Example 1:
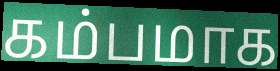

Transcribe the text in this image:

கம்பமாக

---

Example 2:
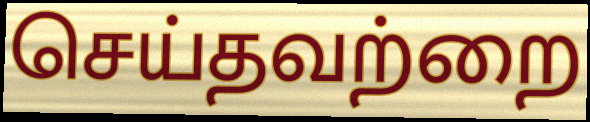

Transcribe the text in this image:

செய்தவற்றை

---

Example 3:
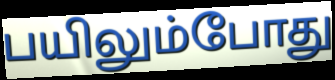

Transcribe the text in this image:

பயிலும்போது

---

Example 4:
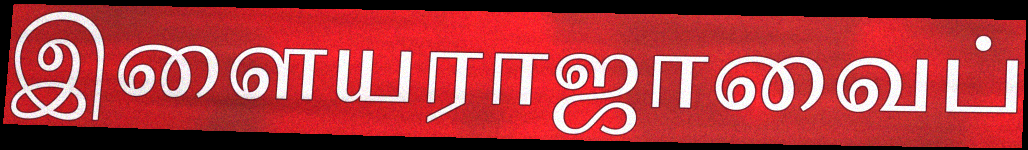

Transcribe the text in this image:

இளையராஜாவைப்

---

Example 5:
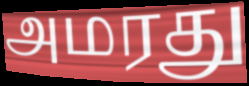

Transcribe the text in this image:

அமரது